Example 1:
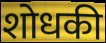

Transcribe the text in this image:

शोधकी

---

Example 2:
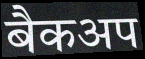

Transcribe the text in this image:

बैकअप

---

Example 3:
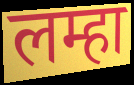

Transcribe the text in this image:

लम्हा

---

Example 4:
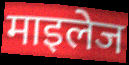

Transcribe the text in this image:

माइलेज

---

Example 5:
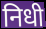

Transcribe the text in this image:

निधी